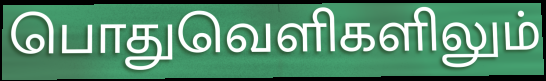
பொதுவெளிகளிலும்